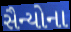
સૈન્યોના